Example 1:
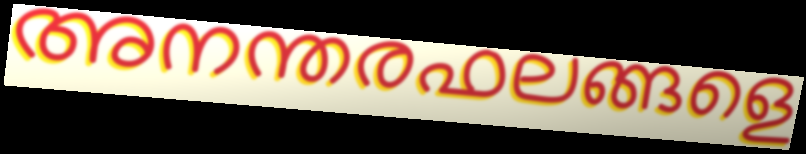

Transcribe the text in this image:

അനന്തരഫലങ്ങളെ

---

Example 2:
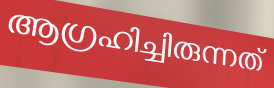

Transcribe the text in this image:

ആഗ്രഹിച്ചിരുന്നത്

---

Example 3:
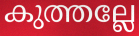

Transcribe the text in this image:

കുത്തല്ലേ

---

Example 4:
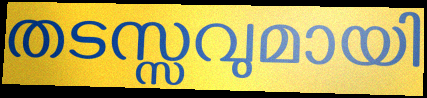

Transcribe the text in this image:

തടസ്സവുമായി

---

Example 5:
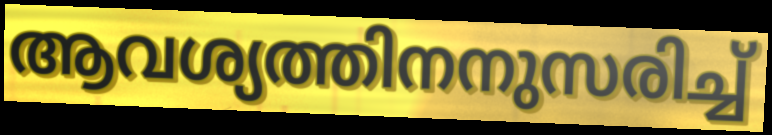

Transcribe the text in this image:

ആവശ്യത്തിനനുസരിച്ച്